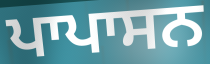
ਪਾਪਾਸਨ